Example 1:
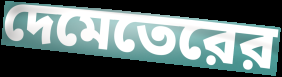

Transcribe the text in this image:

দেমেতেরের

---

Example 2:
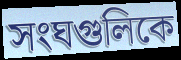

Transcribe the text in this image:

সংঘগুলিকে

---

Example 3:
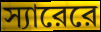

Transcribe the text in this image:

স্যারেরে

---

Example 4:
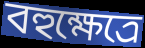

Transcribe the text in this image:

বহুক্ষেত্রে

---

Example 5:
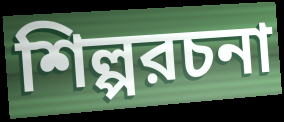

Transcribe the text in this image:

শিল্পরচনা